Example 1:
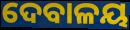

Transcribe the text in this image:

ଦେବାଳୟ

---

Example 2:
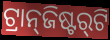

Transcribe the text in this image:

ଟ୍ରାନ୍‌ଜିଷ୍ଟର୍‌ଟି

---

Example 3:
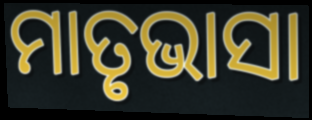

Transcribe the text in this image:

ମାତୃଭାସା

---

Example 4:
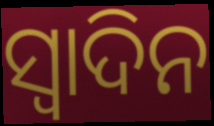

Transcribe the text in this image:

ସ୍ବାଦିନ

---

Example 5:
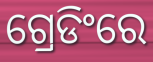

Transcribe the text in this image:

ଗ୍ରେଡିଂରେ